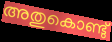
അതുകൊണ്ടു്